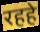
रहहे